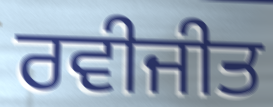
ਰਵੀਜੀਤ